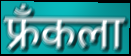
फ्रॅंकला